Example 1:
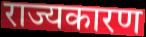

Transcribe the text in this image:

राज्यकारण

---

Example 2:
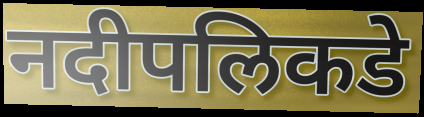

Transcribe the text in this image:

नदीपलिकडे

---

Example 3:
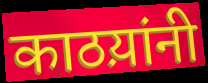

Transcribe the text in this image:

काठय़ांनी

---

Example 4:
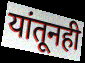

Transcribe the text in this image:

यांतूनही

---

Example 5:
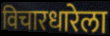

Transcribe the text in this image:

विचारधारेला